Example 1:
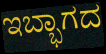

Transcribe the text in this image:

ಇಬ್ಭಾಗದ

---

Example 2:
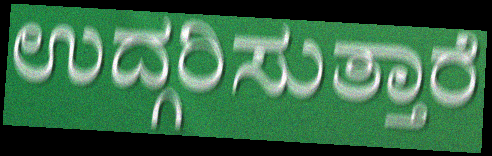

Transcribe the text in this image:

ಉದ್ಗರಿಸುತ್ತಾರೆ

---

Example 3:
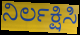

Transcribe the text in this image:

ನಿರ್ಲಕ್ಷಿಸಿ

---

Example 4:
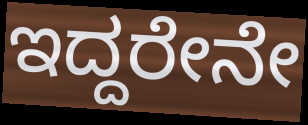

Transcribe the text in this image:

ಇದ್ದರೇನೇ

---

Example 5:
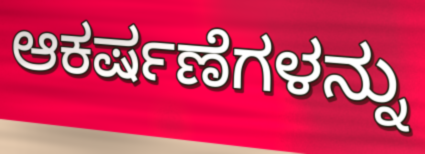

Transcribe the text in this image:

ಆಕರ್ಷಣೆಗಳನ್ನು